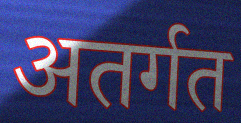
अतर्गत